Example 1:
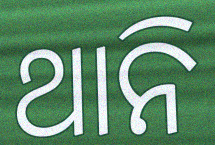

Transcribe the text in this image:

ଥାନି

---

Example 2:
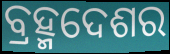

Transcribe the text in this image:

ବ୍ରହ୍ମଦେଶର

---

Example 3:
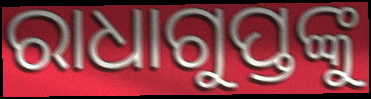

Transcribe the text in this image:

ରାଧାଗୁପ୍ତଙ୍କୁ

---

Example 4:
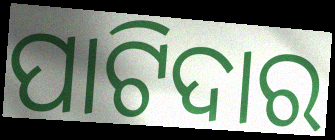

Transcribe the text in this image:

ପାଟିଦାର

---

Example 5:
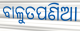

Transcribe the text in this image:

ବାଳୁତପଣିଆ